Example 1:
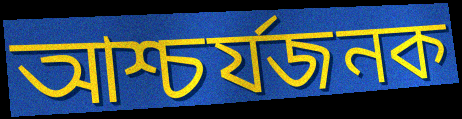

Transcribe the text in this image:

আশ্চৰ্যজনক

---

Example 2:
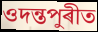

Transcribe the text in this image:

ওদন্তপুৰীত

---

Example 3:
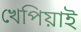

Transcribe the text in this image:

খেপিয়াই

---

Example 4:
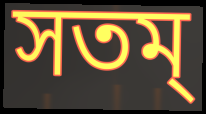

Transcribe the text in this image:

সতম্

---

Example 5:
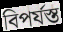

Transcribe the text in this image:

বিপৰ্যস্ত